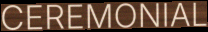
CEREMONIAL